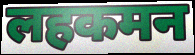
लहकमन